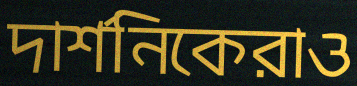
দার্শনিকেরাও